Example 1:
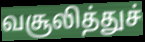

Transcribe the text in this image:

வசூலித்துச்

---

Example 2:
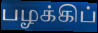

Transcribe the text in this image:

பழக்கிப்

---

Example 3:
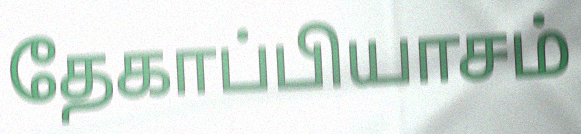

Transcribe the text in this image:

தேகாப்பியாசம்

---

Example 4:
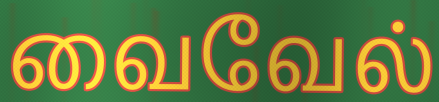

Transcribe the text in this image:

வைவேல்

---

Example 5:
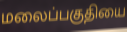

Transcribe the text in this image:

மலைப்பகுதியை